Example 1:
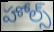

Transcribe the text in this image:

హోల్స్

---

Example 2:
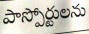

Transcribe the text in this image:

పాస్పోర్టులను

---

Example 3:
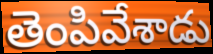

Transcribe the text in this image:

తెంపివేశాడు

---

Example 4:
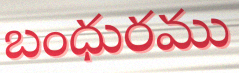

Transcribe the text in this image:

బంధురము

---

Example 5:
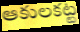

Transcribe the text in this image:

ఆకులకట్ట